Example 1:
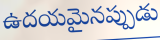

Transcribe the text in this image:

ఉదయమైనప్పుడు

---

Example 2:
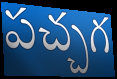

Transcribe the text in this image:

పచ్చగ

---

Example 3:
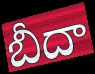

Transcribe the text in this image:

బీదా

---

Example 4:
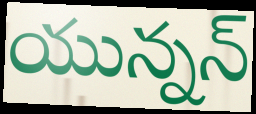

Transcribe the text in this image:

యున్నన్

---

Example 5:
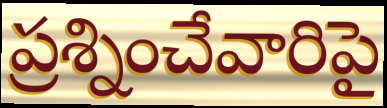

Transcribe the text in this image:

ప్రశ్నించేవారిపై